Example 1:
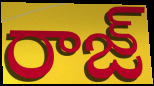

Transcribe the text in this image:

రాజ్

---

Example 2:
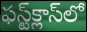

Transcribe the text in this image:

ఫస్ట్‌క్లాస్‌లో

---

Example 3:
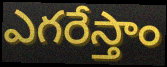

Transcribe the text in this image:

ఎగరేస్తాం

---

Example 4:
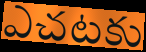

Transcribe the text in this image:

ఎచటకు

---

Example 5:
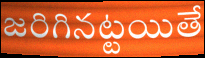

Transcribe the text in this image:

జరిగినట్టయితే